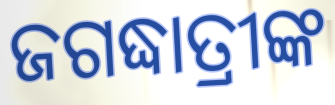
ଜଗଦ୍ଧାତ୍ରୀଙ୍କ